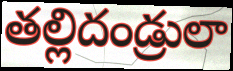
తల్లిదండ్రులా